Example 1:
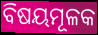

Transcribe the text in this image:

ବିଷୟମୂଳକ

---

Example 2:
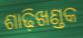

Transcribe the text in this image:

ଶାଢ଼ିଖଣ୍ଡକ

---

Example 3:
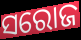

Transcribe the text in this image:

ସରୋଜ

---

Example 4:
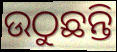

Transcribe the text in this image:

ଉଠୁଛନ୍ତି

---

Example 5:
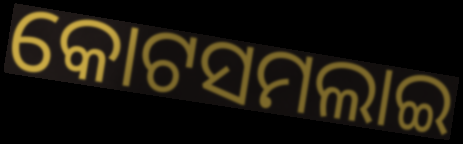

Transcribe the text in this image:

କୋଟସମଲାଇ